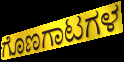
ಗೊಣಗಾಟಗಳ